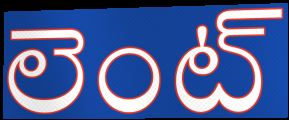
లెంట్